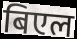
बिएल